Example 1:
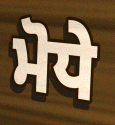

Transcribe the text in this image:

ਮੋਧੇ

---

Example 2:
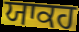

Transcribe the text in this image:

ਯਾਕਹ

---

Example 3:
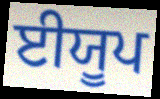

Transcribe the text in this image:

ਈਯੂਪ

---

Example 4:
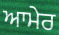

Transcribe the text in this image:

ਆਮੇਰ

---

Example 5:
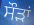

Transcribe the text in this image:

ਸੌੜਾਂ